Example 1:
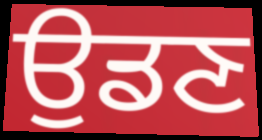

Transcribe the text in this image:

ਉਡਣ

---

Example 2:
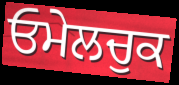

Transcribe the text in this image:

ਓਮੇਲਚੁਕ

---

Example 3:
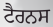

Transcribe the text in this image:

ਟੈਰਨਸ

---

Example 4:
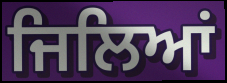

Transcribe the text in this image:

ਜਿਲਿਆਂ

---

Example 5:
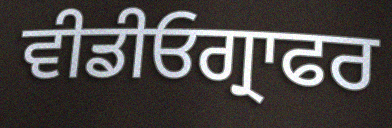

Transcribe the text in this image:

ਵੀਡੀਓਗ੍ਰਾਫਰ